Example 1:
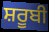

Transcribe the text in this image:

ਸ਼ਰੂਬੀ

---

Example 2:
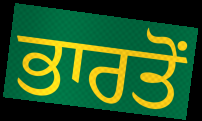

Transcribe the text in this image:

ਭਾਰਤੋਂ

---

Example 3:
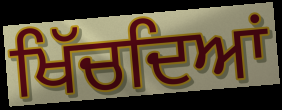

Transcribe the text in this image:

ਖਿੱਚਦਿਆਂ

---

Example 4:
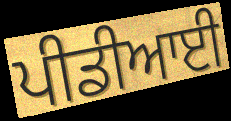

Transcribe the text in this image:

ਪੀਡੀਆਈ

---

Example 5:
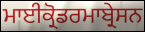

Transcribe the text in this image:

ਮਾਈਕ੍ਰੋਡਰਮਾਬ੍ਰੇਸਨ